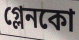
গ্লেনকো